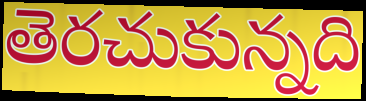
తెరచుకున్నది